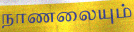
நாணலையும்